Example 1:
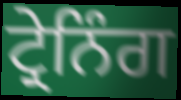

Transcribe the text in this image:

ਟ੍ਰੇਨਿੰਗ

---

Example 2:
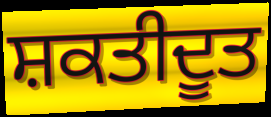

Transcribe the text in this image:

ਸ਼ਕਤੀਦੂਤ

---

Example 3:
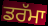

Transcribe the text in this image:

ਡਰੱਮਾ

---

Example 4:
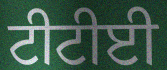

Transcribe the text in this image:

ਟੀਟੀਈ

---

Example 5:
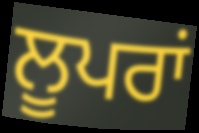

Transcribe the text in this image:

ਲੂਪਰਾਂ